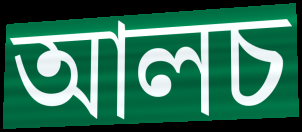
আলচ